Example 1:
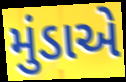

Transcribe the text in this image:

મુંડાએ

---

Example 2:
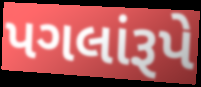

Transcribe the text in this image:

પગલાંરૂપે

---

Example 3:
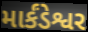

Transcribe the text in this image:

માર્કંડેશ્વર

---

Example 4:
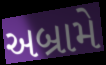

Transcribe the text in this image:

અબ્રામે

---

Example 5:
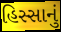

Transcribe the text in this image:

હિસ્સાનું